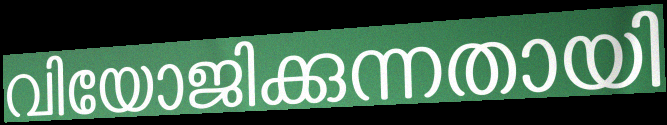
വിയോജിക്കുന്നതായി